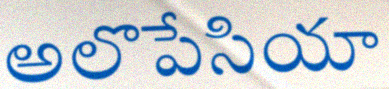
అలొపేసియా